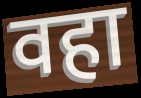
वहा